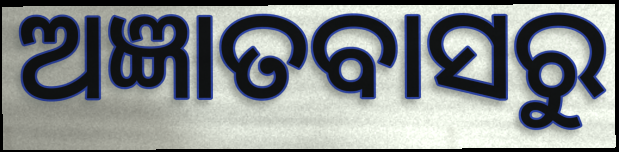
ଅଜ୍ଞାତବାସରୁ